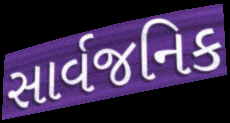
સાર્વજનિક